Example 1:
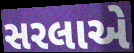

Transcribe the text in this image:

સરલાએ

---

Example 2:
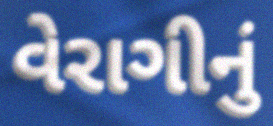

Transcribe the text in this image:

વેરાગીનું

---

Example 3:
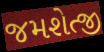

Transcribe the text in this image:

જમશેત્જી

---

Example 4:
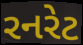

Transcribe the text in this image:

રનરેટ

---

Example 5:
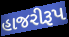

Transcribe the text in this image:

હાજરીરૂપ